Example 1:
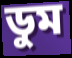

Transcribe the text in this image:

ডুম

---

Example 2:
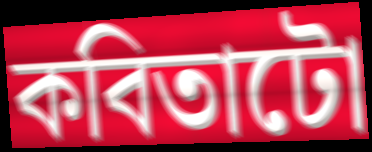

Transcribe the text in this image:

কবিতাটো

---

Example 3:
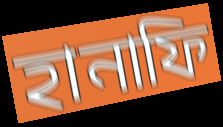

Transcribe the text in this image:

হানাফি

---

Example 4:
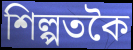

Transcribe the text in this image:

শিল্পতকৈ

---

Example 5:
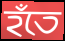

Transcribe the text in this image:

হঁতে